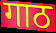
गाठ